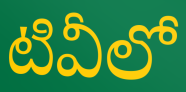
టివీలో